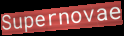
Supernovae